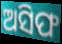
ଅସିଫ